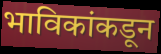
भाविकांकडून